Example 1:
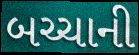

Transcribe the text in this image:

બચ્ચાની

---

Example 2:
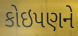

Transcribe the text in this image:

કોઇપણને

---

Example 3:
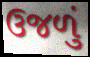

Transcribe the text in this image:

ઉજળું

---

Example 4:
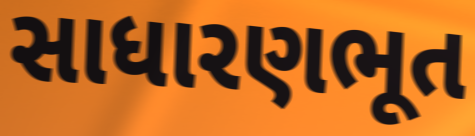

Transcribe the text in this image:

સાધારણભૂત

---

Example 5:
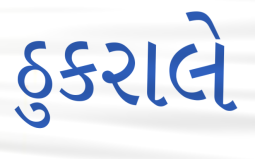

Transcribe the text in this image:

ઠુકરાલે